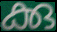
ക്കു